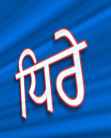
ਧਿਰੇ